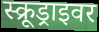
स्क्रूड्राइवर